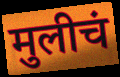
मुलीचं